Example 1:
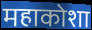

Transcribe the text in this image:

महाकोशा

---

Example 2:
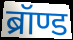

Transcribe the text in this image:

ब्रॉण्ड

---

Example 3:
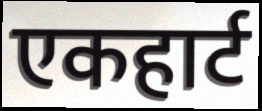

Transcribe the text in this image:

एकहार्ट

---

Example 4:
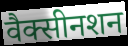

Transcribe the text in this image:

वैक्सीनशन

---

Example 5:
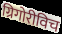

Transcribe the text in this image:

ग्रिगोरीविच